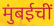
मुंबईचीं